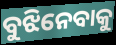
ବୁଝିନେବାକୁ